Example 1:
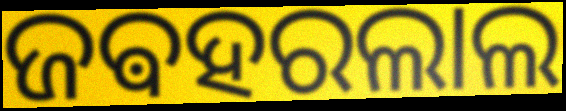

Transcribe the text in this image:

ଜଵହରଲାଲ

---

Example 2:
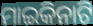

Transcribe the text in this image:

ମାଇକିନାଟି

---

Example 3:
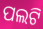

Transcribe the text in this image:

ପଲଟି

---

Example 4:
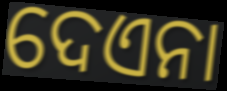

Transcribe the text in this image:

ଦେଏନା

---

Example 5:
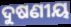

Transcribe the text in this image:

ଦୁଷଣୀୟ